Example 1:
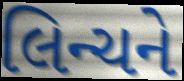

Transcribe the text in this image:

લિન્ચને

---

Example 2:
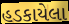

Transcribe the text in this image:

હડકાયેલા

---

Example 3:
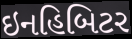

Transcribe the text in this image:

ઇનહિબિટર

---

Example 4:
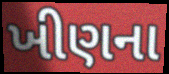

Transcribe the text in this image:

ખીણના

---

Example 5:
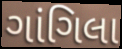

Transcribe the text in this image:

ગાંગિલા